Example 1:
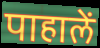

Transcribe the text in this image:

पाहालें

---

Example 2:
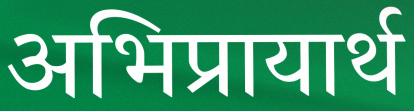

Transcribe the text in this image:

अभिप्रायार्थ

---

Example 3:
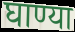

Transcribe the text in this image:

घाण्या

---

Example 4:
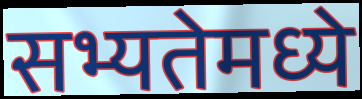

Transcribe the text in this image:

सभ्यतेमध्ये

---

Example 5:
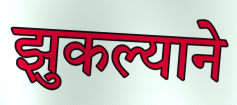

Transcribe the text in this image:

झुकल्याने